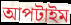
আপটাইম